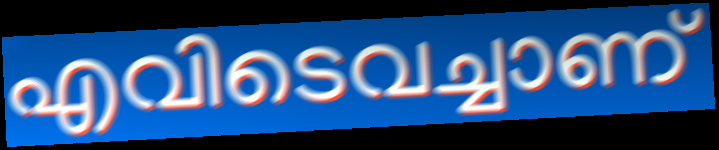
എവിടെവച്ചാണ്